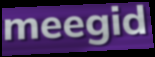
meegid